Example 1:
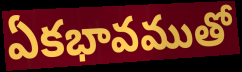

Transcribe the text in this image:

ఏకభావముతో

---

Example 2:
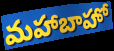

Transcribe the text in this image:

మహాబాహో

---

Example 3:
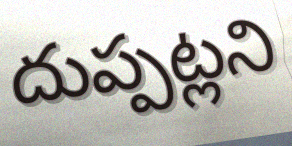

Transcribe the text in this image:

దుప్పట్లని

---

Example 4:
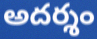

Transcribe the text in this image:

అదర్శం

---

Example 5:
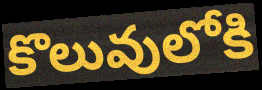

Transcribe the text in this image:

కొలువులోకి